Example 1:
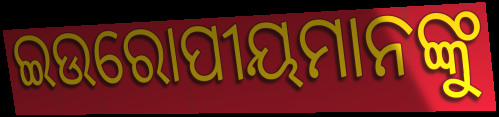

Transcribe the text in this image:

ଇଉରୋପୀୟମାନଙ୍କୁ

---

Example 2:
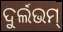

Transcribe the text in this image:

ଦୁର୍ଲଭମ୍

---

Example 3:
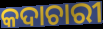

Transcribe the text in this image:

କଦାଚାରୀ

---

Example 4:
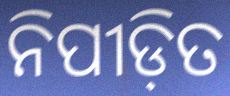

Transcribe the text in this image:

ନିପୀଡ଼ିତ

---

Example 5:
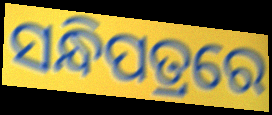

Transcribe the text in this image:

ସନ୍ଧିପତ୍ରରେ